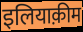
इलियाक़ीम